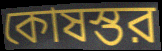
কোষস্তর